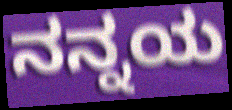
ನನ್ನಯ